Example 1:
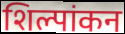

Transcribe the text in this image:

शिल्पांकन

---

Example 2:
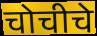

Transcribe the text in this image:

चोचीचे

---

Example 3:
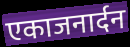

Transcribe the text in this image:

एकाजनार्दन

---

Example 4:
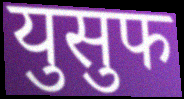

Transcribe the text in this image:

युसुफ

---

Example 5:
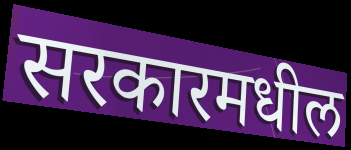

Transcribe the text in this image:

सरकारमधील